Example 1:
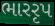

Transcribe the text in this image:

ભારરૃપ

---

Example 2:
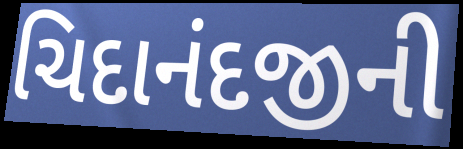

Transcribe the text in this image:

ચિદાનંદજીની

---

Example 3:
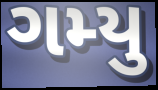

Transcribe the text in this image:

ગમ્યુ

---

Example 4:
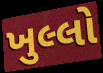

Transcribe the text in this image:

ખુલ્લો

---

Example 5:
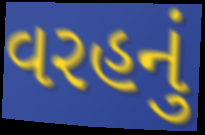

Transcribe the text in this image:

વરહનું